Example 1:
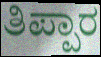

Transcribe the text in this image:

ತಿಪ್ಪಾರ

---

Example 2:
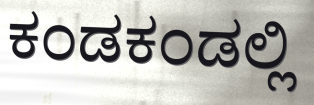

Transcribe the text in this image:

ಕಂಡಕಂಡಲ್ಲಿ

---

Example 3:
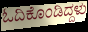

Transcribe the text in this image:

ಓದಿಕೊಂಡಿದ್ದಳು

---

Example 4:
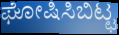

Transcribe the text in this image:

ಘೋಷಿಸಿಬಿಟ್ಟ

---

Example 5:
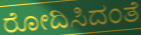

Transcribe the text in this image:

ರೋದಿಸಿದಂತೆ